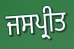
ਜਸਪ੍ਰੀਤ